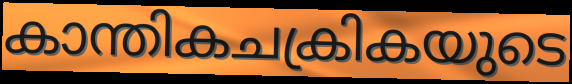
കാന്തികചക്രികയുടെ